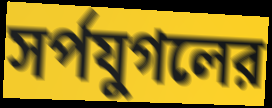
সর্পযুগলের